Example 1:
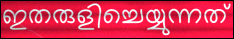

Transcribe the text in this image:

ഇതരുളിച്ചെയ്യുന്നത്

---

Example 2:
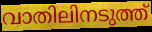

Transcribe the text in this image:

വാതിലിനടുത്ത്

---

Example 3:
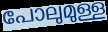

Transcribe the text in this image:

പോലുമുള്ള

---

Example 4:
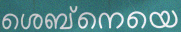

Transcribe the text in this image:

ശെബ്നെയെ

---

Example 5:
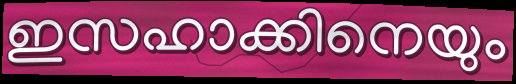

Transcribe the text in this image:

ഇസഹാക്കിനെയും